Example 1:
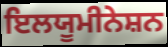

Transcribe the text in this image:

ਇਲਯੂਮੀਨੇਸ਼ਨ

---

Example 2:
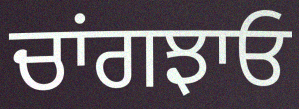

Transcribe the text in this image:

ਚਾਂਗਝਾਓ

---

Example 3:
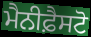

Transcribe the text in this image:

ਮੈਨੀਫ਼ੈਸਟੋ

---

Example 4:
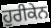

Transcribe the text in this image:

ਹੁਰੀਕੇਨ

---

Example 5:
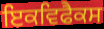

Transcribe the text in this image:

ਇਕਵਿਫੈਕਸ